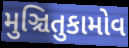
મુઞ્ચિતુકામોવ